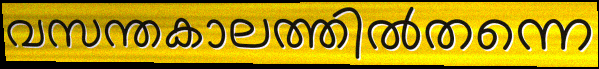
വസന്തകാലത്തിൽതന്നെ